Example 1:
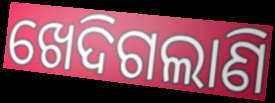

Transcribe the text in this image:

ଖେଦିଗଲାଣି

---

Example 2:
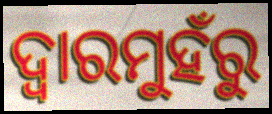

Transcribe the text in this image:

ଦ୍ଵାରମୁହଁରୁ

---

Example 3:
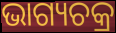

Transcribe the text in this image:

ଭାଗ୍ୟଚକ୍ର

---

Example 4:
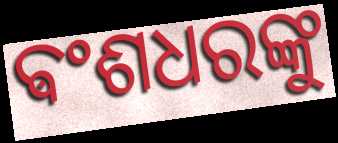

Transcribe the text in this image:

ଵଂଶଧରଙ୍କୁ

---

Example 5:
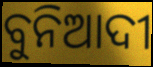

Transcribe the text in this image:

ବୁନିଆଦୀ